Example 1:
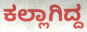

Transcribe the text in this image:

ಕಲ್ಲಾಗಿದ್ದ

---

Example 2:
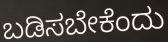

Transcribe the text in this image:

ಬಡಿಸಬೇಕೆಂದು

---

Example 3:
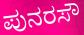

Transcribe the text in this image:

ಪುನರಸೌ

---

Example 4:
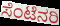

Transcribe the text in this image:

ಸೆಂಟೆನರಿ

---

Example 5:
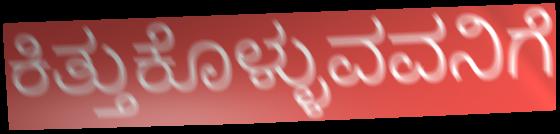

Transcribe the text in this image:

ಕಿತ್ತುಕೊಳ್ಳುವವನಿಗೆ